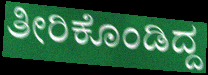
ತೀರಿಕೊಂಡಿದ್ದ